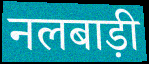
नलबाड़ी